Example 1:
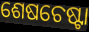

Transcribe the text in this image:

ଶେଷଚେଷ୍ଟା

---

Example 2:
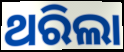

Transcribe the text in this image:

ଥରିଲା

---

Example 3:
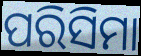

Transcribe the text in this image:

ପରିସିମା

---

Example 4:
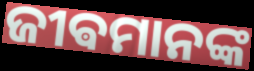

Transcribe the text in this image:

ଜୀଵମାନଙ୍କ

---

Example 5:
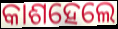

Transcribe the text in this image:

କାଶହେଲେ